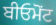
ਬੀਓਮੋਂਟ